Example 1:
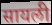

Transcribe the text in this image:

सायली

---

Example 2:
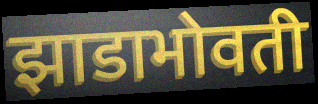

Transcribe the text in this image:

झाडाभोवती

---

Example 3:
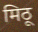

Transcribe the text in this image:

मिठू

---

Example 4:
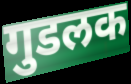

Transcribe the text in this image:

गुडलक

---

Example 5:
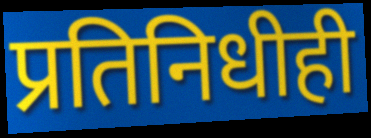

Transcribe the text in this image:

प्रतिनिधीही